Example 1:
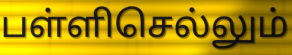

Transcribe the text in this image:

பள்ளிசெல்லும்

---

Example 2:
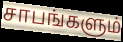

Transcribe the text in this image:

சாபங்களும்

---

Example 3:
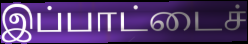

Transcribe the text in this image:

இப்பாட்டைச்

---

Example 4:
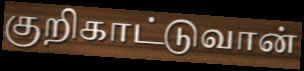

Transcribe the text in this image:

குறிகாட்டுவான்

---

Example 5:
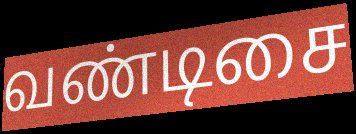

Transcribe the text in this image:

வண்டிசை